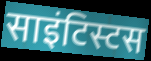
साइंटिस्टस